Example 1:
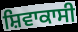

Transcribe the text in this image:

ਸ਼ਿਵਾਕਾਸੀ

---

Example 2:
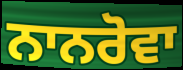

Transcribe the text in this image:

ਨਾਨਰੋਵਾ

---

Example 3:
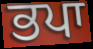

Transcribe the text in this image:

ਭਪਾ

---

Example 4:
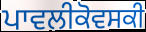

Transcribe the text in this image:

ਪਾਵਲੀਕੋਵਸਕੀ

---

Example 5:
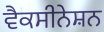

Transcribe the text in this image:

ਵੈਕਸੀਨੇਸ਼ਨ